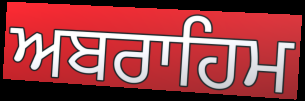
ਅਬਰਾਹਿਮ